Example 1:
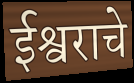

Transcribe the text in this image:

ईश्वराचे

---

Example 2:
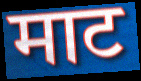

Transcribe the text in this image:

माट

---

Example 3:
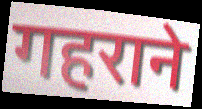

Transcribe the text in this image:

गहराने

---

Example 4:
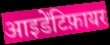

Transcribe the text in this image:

आइडेंटिफ़ायर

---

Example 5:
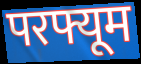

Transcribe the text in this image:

परफ्यूम